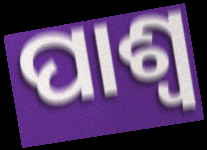
ପାଶ୍ୱ